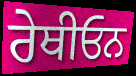
ਰੇਥੀਓਨ